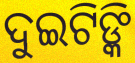
ଦୁଇଟିଙ୍କି